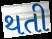
થતી